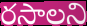
రసాలని